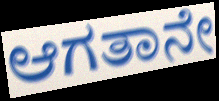
ಆಗತಾನೇ